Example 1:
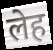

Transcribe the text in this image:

लेह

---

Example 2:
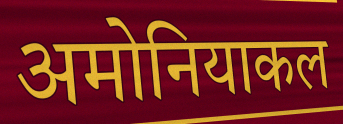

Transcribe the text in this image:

अमोनियाकल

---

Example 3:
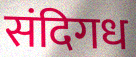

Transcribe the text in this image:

संदिगध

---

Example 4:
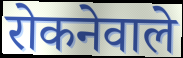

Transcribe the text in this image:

रोकनेवाले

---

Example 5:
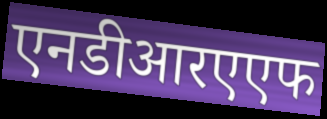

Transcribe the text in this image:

एनडीआरएएफ